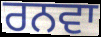
ਰਨਵਾ